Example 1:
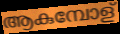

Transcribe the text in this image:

ആകുമ്പോള്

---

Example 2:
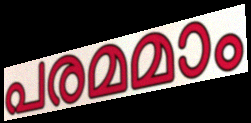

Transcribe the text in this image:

പരമമാം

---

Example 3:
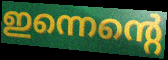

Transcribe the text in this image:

ഇന്നെന്റെ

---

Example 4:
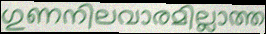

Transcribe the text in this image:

ഗുണനിലവാരമില്ലാത്ത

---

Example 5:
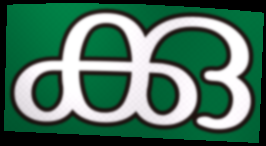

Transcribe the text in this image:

ക്കു